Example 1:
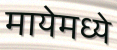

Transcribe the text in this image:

मायेमध्ये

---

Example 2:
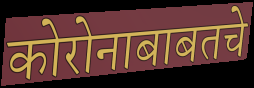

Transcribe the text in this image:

कोरोनाबाबतचे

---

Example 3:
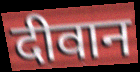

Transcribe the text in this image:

दीवान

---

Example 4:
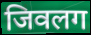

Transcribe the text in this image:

जिवलग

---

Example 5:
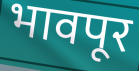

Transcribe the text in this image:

भावपूर